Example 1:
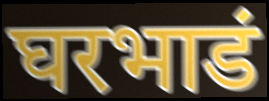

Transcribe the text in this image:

घरभाडं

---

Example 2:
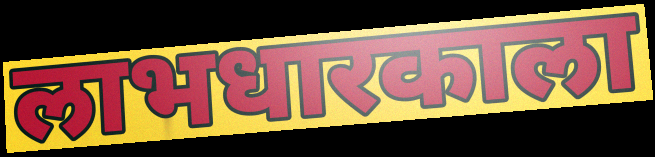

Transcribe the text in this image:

लाभधारकाला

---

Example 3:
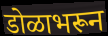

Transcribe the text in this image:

डोळाभरून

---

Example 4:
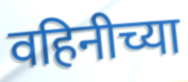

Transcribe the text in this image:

वहिनीच्या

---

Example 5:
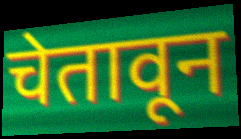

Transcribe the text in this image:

चेतावून